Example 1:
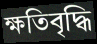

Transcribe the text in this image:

ক্ষতিবৃদ্ধি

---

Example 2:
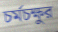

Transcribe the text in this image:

চর্মচক্ষুর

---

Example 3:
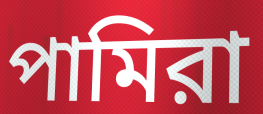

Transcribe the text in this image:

পামিরা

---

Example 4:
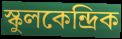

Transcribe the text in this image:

স্কুলকেন্দ্রিক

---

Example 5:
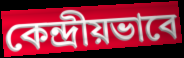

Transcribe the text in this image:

কেন্দ্রীয়ভাবে